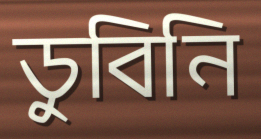
ডুবিনি